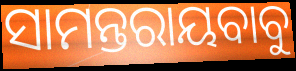
ସାମନ୍ତରାୟବାବୁ